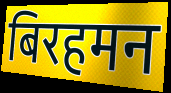
बिरहमन